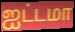
ஐட்டமா